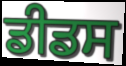
ਡੀਡਸ